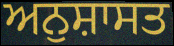
ਅਨੁਸ਼ਾਸਤ